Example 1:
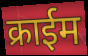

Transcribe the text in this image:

क्राईम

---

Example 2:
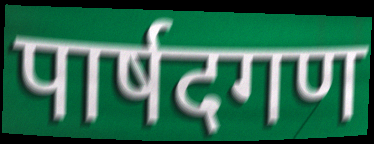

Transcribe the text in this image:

पार्षदगण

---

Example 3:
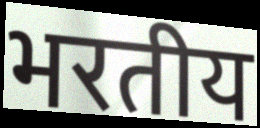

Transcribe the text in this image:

भरतीय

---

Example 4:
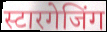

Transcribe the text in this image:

स्टारगेजिंग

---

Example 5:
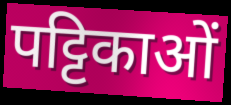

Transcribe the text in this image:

पट्टिकाओं